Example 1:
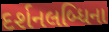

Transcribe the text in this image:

દર્શનલબ્ધિના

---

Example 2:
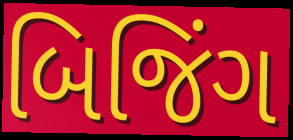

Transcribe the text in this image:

બિજિંગ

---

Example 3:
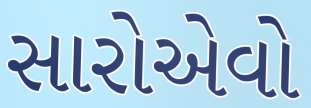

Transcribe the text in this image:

સારોએવો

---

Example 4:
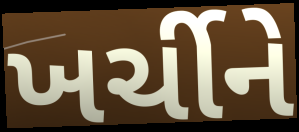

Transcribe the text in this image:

ખર્ચીને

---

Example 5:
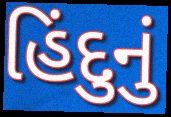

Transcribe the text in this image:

હિંદુનું